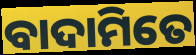
ବାଦାମିତେ